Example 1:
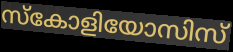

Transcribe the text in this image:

സ്കോളിയോസിസ്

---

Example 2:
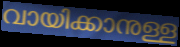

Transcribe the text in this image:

വായിക്കാനുള്ള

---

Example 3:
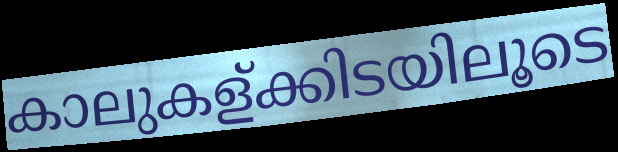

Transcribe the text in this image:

കാലുകള്ക്കിടയിലൂടെ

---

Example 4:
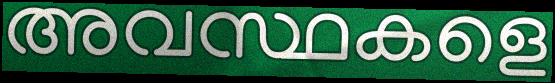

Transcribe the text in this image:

അവസ്ഥകളെ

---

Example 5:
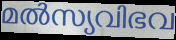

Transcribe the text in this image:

മൽസ്യവിഭവ